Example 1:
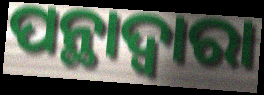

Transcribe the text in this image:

ପନ୍ଥାଦ୍ୱାରା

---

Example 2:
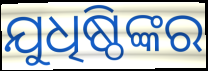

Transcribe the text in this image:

ଯୁଧିଷ୍ଠିଙ୍କର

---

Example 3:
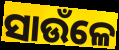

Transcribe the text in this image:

ସାଉଁଳେ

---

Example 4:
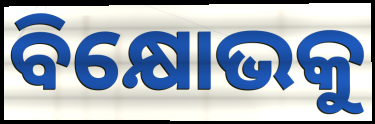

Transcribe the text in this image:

ବିକ୍ଷୋଭକୁ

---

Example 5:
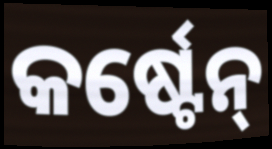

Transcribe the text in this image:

କର୍ଷ୍ଟେନ୍